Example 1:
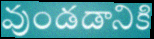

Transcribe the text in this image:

వుండడానికి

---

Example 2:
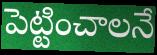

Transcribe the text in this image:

పెట్టించాలనే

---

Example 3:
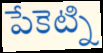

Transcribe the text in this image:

పేకెట్ని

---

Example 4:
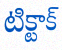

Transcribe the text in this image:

టిక్టాక్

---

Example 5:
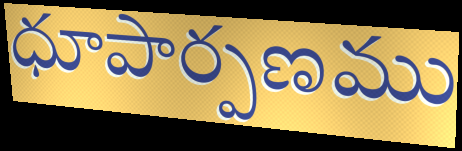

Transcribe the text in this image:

ధూపార్పణము